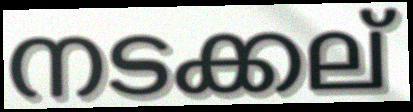
നടക്കല്